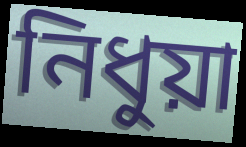
নিধুয়া